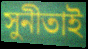
সুনীতাই